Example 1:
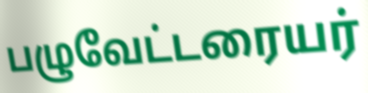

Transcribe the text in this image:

பழுவேட்டரையர்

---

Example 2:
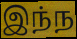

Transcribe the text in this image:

இந்ந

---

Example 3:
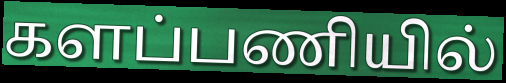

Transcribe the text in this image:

களப்பணியில்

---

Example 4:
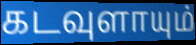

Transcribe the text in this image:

கடவுளாயும்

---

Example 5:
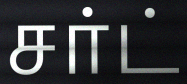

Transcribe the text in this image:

சர்ட்